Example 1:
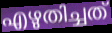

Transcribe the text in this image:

എഴുതിച്ചത്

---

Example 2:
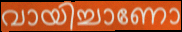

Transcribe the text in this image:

വായിച്ചാണോ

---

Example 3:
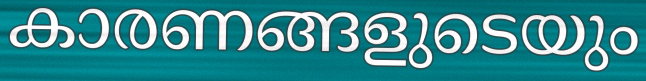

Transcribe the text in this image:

കാരണങ്ങളുടെയും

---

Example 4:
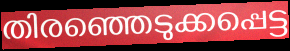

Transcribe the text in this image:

തിരഞ്ഞെടുക്കപ്പെട്ട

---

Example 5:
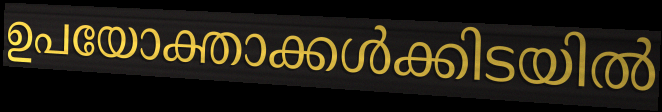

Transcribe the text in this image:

ഉപയോക്താക്കൾക്കിടയിൽ